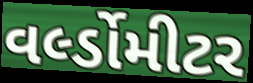
વર્લ્ડોમીટર